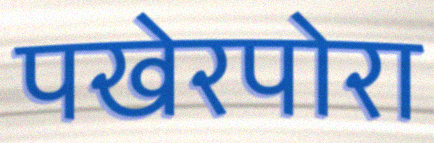
पखेरपोरा